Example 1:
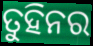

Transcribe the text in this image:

ତୁହିନର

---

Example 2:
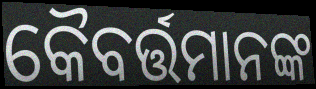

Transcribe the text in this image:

କୈବର୍ତ୍ତମାନଙ୍କ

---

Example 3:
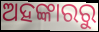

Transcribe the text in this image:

ଅହଙ୍କାରରୁ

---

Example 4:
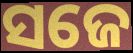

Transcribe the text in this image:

ସଜେ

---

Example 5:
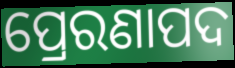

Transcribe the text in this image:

ପ୍ରେରଣାପଦ